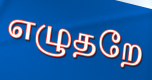
எழுதறே